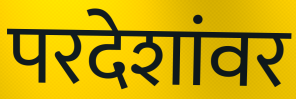
परदेशांवर